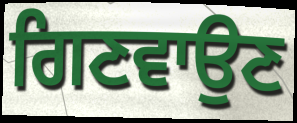
ਗਿਣਵਾਉਣ